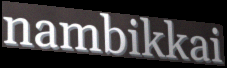
nambikkai